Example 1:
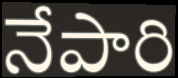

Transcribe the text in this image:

నేపారి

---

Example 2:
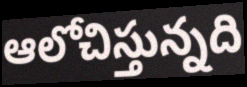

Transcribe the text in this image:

ఆలోచిస్తున్నది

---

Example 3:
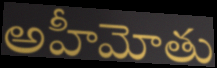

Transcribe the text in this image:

అహీమోతు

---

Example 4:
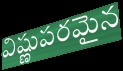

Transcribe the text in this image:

విష్ణుపరమైన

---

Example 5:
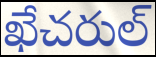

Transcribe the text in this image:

ఖేచరుల్